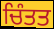
ਚਿੰਤਤ